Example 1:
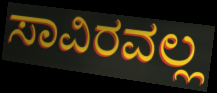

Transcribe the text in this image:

ಸಾವಿರವಲ್ಲ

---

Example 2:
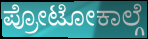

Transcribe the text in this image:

ಪ್ರೋಟೋಕಾಲ್ಗೆ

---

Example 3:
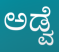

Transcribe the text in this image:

ಅಡ್ವೆ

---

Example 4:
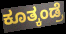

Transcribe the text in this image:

ಕೂತ್ಕಂಡ್ರೆ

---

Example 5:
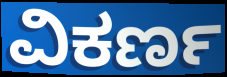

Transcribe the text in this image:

ವಿಕರ್ಣ